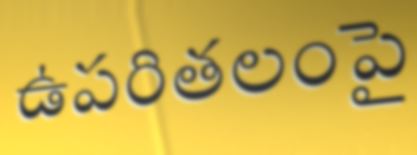
ఉపరితలంపై